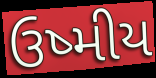
ઉષ્મીય